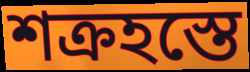
শক্রহস্তে